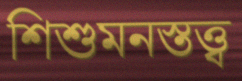
শিশুমনস্তত্ত্ব